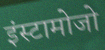
इंस्टामोजो